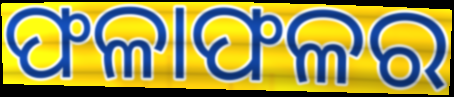
ଫଳାଫଳର